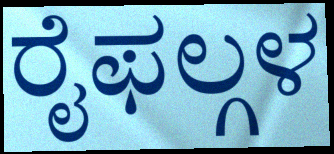
ರೈಫಲ್ಗಳ